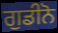
ਗੁਡੀਨੋ